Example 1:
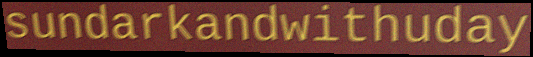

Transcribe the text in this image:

sundarkandwithuday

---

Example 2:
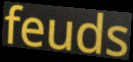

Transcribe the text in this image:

feuds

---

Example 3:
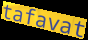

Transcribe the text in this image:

tafavat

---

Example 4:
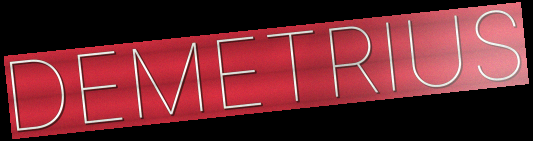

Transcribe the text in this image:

DEMETRIUS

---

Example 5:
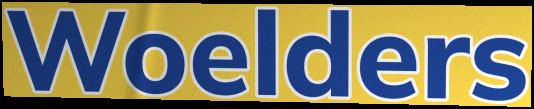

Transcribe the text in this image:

Woelders